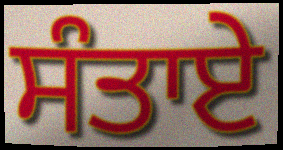
ਸੰਤਾਏ